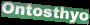
Ontosthyo